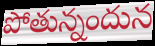
పోతున్నందున